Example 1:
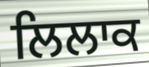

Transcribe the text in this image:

ਲਿਲਾਕ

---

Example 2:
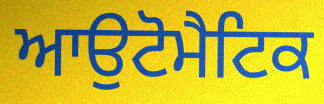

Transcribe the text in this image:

ਆਉਟੋਮੈਟਿਕ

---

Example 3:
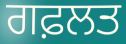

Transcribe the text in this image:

ਗਫ਼ਲਤ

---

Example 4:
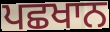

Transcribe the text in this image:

ਪਛਖਾਨ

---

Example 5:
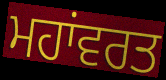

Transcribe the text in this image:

ਮਹਾਂਵਰਤ